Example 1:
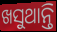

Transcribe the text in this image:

ଖସୁଥାନ୍ତି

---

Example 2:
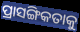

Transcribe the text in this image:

ପ୍ରାସଙ୍ଗିକତାକୁ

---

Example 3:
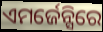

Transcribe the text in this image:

ଏମର୍ଜେନ୍ସିରେ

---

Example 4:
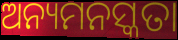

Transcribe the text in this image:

ଅନ୍ୟମନସ୍କତା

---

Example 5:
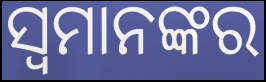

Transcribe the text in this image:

ସ୍ୱମାନଙ୍କର